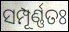
ସମ୍ପୂର୍ଣ୍ଣତଃ